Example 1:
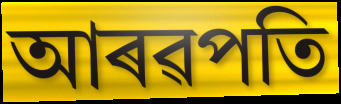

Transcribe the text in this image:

আৰৱপতি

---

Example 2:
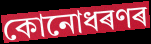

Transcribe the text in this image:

কোনোধৰণৰ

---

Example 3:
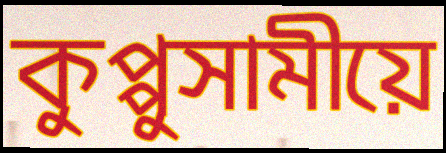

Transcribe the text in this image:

কুপ্পুসামীয়ে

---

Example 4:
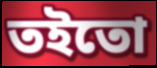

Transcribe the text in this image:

তইতো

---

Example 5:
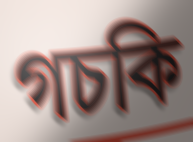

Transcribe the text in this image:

গচকি